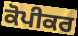
ਕੋਪੀਕਰ